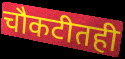
चौकटीतही